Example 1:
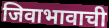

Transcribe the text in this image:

जिवाभावाची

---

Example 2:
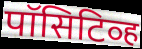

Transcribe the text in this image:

पॉसिटिव्ह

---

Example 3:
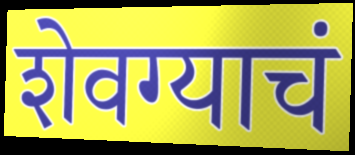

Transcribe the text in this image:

शेवग्याचं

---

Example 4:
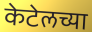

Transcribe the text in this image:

केटेलच्या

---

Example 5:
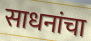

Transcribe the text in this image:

साधनांचा